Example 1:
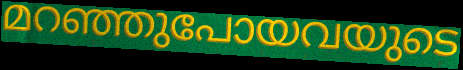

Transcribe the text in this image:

മറഞ്ഞുപോയവയുടെ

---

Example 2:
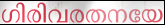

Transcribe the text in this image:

ഗിരിവരതനയേ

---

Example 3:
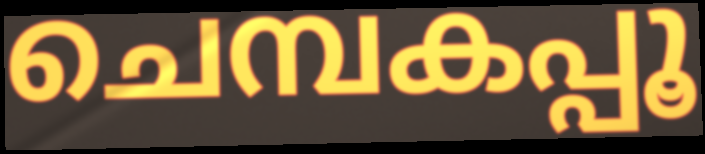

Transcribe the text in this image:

ചെമ്പകപ്പൂ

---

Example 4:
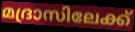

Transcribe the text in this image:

മദ്രാസിലേക്ക്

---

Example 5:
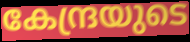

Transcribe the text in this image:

കേന്ദ്രയുടെ